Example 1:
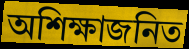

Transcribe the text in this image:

অশিক্ষাজনিত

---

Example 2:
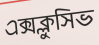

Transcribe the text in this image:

এক্সক্লুসিভ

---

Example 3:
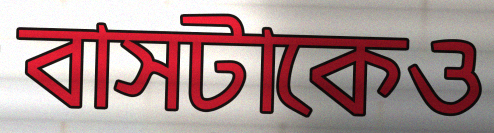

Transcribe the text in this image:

বাসটাকেও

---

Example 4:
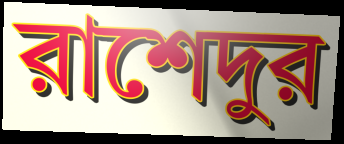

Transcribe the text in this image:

রাশেদুর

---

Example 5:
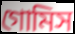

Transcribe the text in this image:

গোমিস